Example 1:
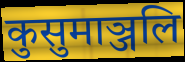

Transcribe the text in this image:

कुसुमाञ्जलि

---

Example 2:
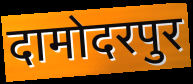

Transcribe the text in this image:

दामोदरपुर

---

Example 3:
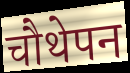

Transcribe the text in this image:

चौथेपन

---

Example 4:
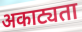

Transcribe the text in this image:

अकाट्यता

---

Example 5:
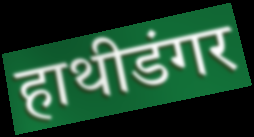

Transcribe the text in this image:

हाथीडंगर